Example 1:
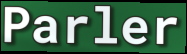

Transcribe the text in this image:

Parler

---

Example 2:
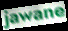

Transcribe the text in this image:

jawane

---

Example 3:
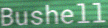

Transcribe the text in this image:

Bushell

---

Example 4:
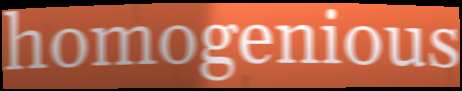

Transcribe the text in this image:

homogenious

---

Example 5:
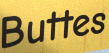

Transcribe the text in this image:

Buttes